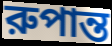
রুপান্ত